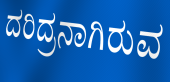
ದರಿದ್ರನಾಗಿರುವ